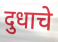
दुधाचे